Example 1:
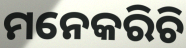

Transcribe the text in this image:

ମନେକରିଚି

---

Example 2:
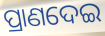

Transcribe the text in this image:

ପ୍ରାଣଦେଇ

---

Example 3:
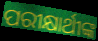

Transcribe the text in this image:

ପରୀକ୍ଷାର୍ଥୀଙ୍କ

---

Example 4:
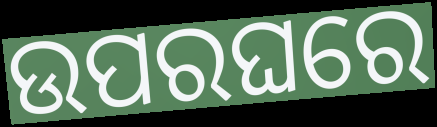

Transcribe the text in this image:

ଉପରଘରେ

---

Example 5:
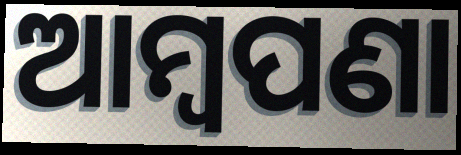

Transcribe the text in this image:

ଆମ୍ବପଣା